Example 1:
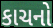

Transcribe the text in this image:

કાચનો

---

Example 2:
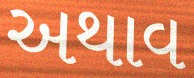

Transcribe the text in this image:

અથાવ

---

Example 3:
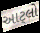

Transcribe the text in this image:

આટ્લો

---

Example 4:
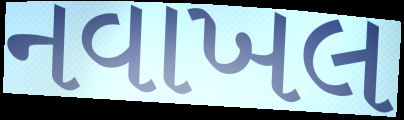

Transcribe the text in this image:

નવાખલ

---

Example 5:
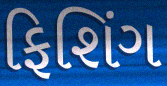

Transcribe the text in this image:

ફિશિંગ